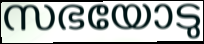
സഭയോടു